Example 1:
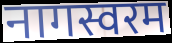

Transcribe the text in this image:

नागस्वरम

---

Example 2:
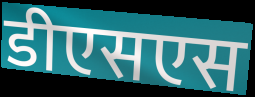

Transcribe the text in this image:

डीएसएस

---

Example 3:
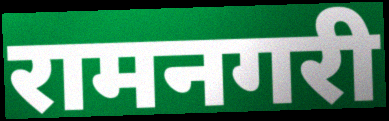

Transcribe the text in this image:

रामनगरी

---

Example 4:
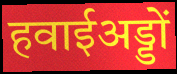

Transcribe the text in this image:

हवाईअड्डों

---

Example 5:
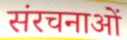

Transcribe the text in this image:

संरचनाओं